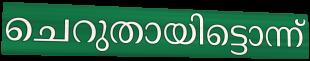
ചെറുതായിട്ടൊന്ന്